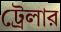
ট্রেলার